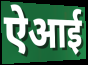
ऐआई